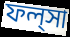
ফল্‌সা